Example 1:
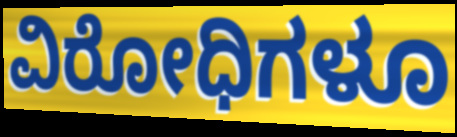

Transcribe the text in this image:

ವಿರೋಧಿಗಳೂ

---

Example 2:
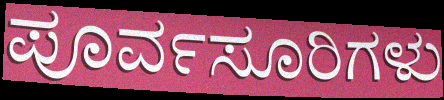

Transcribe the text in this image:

ಪೂರ್ವಸೂರಿಗಳು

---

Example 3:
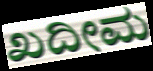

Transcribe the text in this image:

ಖದೀಮ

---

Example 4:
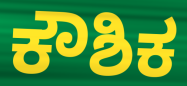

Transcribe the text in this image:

ಕೌಶಿಕ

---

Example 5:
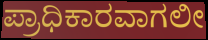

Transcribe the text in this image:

ಪ್ರಾಧಿಕಾರವಾಗಲೀ